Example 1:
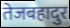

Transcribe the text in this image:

तेजबहादुर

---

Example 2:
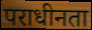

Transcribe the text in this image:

पराधीनता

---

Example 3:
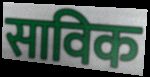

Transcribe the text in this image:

साविक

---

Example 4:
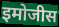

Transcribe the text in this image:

इमोजीस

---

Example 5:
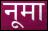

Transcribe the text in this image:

नूमा